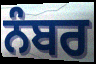
ਨੰਬਰ